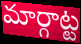
మార్గాట్ట